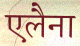
एलैना